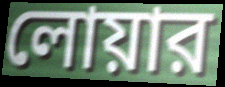
লোয়ার